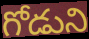
గోడుని